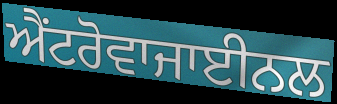
ਐਂਟਰੋਵਾਜਾਈਨਲ